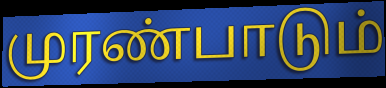
முரண்பாடும்